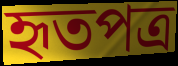
হৃতপত্র